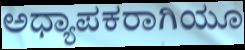
ಅಧ್ಯಾಪಕರಾಗಿಯೂ